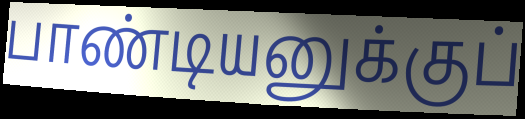
பாண்டியனுக்குப்